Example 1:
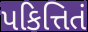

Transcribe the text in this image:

પકિત્તિતં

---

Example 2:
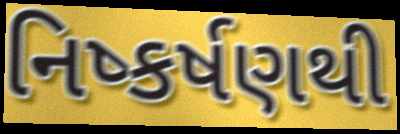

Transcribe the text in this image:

નિષ્કર્ષણથી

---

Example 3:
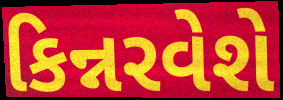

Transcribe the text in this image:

કિન્નરવેશે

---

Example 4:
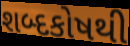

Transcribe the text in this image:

શબ્દકોષથી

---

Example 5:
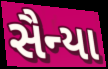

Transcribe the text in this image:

સૈન્યા